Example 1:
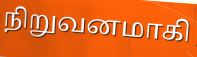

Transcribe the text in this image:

நிறுவனமாகி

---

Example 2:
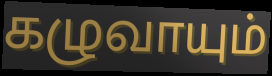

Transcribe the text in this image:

கழுவாயும்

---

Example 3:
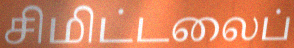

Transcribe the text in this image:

சிமிட்டலைப்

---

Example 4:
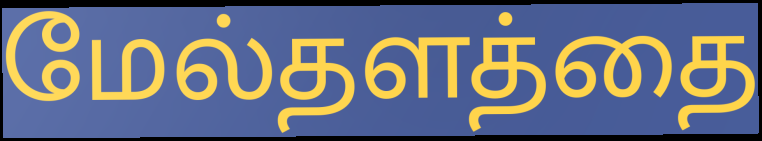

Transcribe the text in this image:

மேல்தளத்தை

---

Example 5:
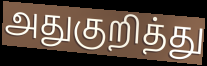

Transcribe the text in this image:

அதுகுறித்து